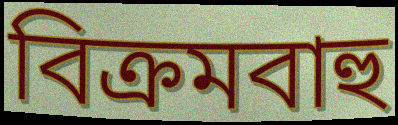
বিক্রমবাহু